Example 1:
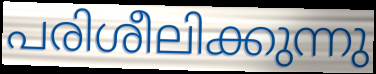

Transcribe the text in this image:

പരിശീലിക്കുന്നു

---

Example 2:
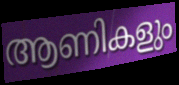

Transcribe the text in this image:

ആണികളും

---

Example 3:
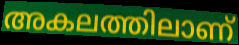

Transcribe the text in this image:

അകലത്തിലാണ്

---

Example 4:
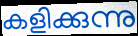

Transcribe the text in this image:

കളിക്കുന്നു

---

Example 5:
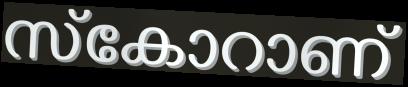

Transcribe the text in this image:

സ്‌കോറാണ്